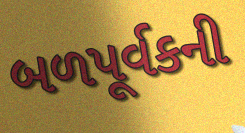
બળપૂર્વકની